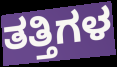
ತತ್ತಿಗಳ